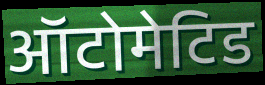
ऑटोमेटिड